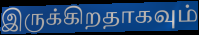
இருக்கிறதாகவும்